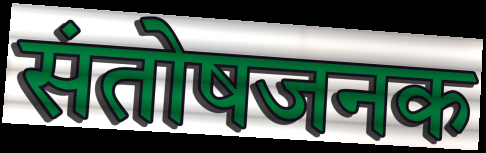
संतोषजनक